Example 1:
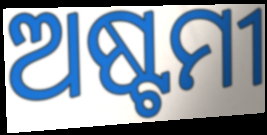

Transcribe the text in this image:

ଅଷ୍ଟମୀ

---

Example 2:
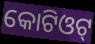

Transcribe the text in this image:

କୋଟିଓଟ୍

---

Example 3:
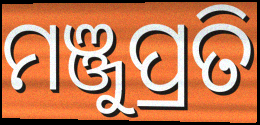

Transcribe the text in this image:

ମଞ୍ଜୁପ୍ରତି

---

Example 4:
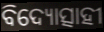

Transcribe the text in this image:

ବିଦ୍ୟୋତ୍ସାହୀ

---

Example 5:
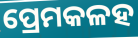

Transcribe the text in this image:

ପ୍ରେମକଳହ